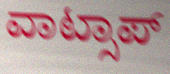
ವಾಟ್ಸಾಪ್